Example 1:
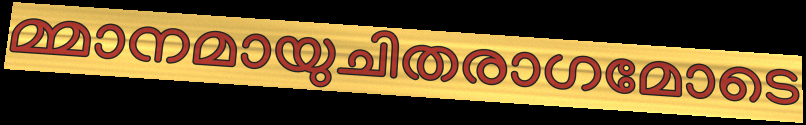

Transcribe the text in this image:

മ്മാനമായുചിതരാഗമോടെ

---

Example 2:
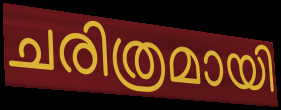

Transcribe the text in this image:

ചരിത്രമായി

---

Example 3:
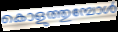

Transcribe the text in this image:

കൊളുത്തുമ്പോൾ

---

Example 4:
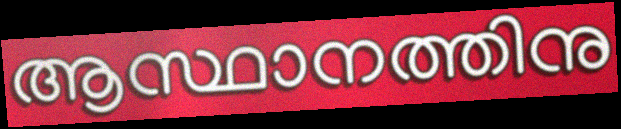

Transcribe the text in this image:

ആസ്ഥാനത്തിനു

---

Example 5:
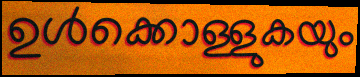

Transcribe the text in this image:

ഉൾക്കൊള്ളുകയും